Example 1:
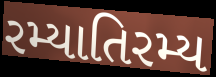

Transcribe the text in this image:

રમ્યાતિરમ્ય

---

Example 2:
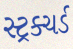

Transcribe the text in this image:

સ્ટ્રક્ચર્ડ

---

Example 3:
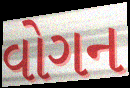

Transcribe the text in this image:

વોગન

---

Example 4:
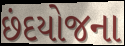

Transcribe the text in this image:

છંદયોજના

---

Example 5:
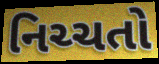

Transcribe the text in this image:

નિચ્ચતો